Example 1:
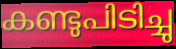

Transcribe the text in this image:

കണ്ടുപിടിച്ചു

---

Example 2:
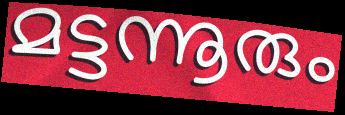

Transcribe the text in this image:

മട്ടന്നൂരും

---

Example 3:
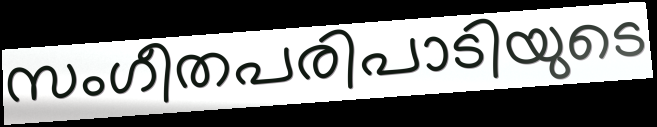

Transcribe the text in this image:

സംഗീതപരിപാടിയുടെ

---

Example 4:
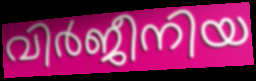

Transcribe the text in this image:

വിർജീനിയ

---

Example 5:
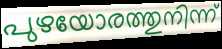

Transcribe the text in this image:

പുഴയോരത്തുനിന്ന്